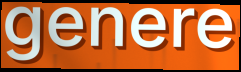
genere